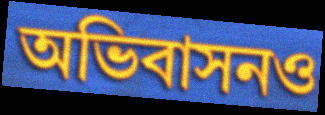
অভিবাসনও